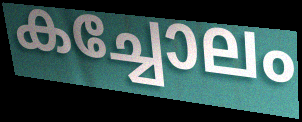
കച്ചോലം